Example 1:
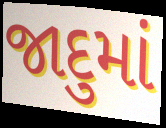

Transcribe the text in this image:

જાદુમાં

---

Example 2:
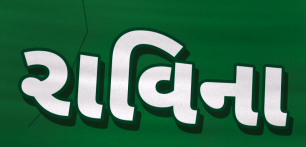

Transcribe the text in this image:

રાવિના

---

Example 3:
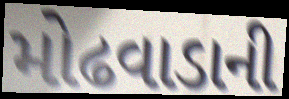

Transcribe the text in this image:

મોઢવાડાની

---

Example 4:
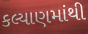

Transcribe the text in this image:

કલ્યાણમાંથી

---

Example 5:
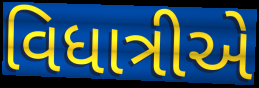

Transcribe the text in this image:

વિધાત્રીએ